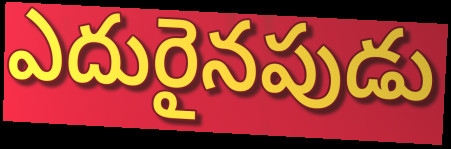
ఎదురైనపుడు